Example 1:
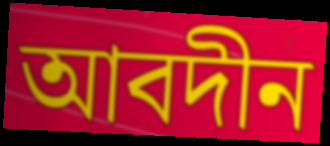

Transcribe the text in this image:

আবদীন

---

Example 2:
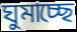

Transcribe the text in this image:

ঘুমাচ্ছে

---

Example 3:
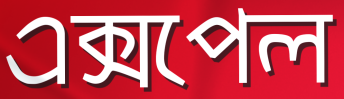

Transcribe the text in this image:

এক্সপেল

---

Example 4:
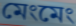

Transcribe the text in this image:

মেংমেং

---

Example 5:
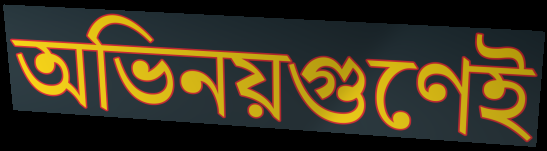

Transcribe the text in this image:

অভিনয়গুণেই